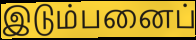
இடும்பனைப்